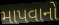
માપવાનો